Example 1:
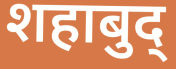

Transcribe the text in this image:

शहाबुद्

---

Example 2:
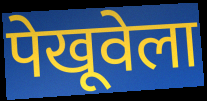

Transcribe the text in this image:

पेखूवेला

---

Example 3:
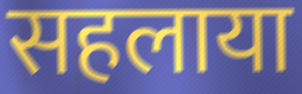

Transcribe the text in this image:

सहलाया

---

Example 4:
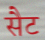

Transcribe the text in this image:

सैट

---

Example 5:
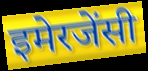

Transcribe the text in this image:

इमेरजेंसी